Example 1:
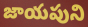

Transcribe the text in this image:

జాయపుని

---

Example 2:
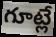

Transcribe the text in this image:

గూట్లే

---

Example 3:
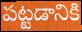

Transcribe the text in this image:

పట్టడానికి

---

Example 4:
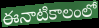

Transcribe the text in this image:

ఈనాటికాలంలో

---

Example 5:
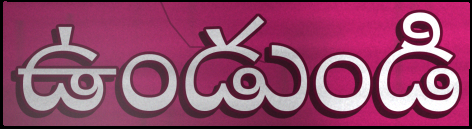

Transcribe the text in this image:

ఉండుండి